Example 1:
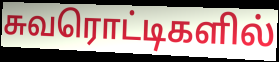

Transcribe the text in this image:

சுவரொட்டிகளில்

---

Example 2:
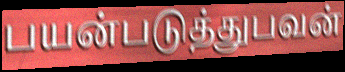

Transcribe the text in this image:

பயன்படுத்துபவன்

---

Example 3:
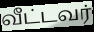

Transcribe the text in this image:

வீட்டவர்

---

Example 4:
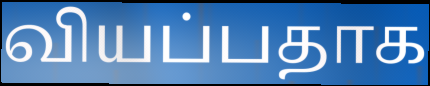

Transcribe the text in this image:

வியப்பதாக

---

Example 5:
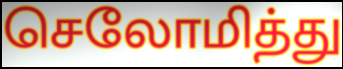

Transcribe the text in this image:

செலோமித்து